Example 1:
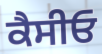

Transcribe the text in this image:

ਕੈਸੀਓ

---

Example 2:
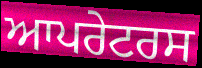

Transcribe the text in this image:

ਆਪਰੇਟਰਸ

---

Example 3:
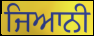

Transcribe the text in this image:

ਜਿਆਨੀ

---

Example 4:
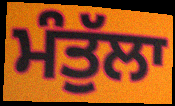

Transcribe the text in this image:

ਮੰਤੁੱਲਾ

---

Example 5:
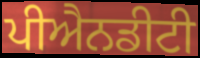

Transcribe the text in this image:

ਪੀਐਨਡੀਟੀ